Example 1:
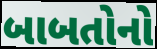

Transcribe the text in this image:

બાબતોનો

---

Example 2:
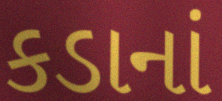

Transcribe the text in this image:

કડાનાં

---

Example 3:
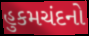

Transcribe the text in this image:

હુકમચંદનો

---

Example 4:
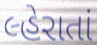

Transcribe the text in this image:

લ્હેરાતાં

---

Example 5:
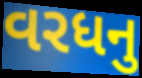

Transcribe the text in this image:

વરધનુ